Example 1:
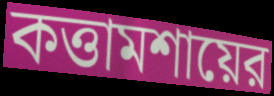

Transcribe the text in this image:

কত্তামশায়ের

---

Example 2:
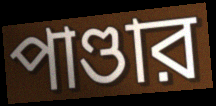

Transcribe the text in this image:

পাণ্ডার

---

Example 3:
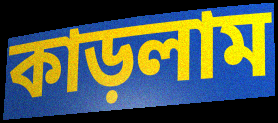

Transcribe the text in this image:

কাড়লাম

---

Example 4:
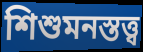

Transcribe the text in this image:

শিশুমনস্তত্ত্ব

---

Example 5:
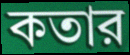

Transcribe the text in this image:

কতার